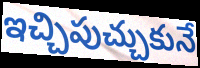
ఇచ్చిపుచ్చుకునే